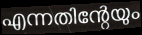
എന്നതിന്റേയും